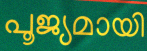
പൂജ്യമായി